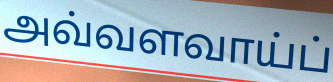
அவ்வளவாய்ப்